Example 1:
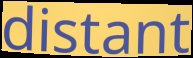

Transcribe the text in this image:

distant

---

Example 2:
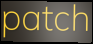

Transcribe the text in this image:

patch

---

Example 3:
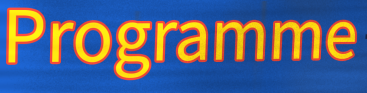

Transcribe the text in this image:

Programme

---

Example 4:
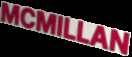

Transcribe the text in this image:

MCMILLAN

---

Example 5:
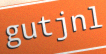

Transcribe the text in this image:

gutjnl